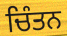
ਚਿੰਤਨ